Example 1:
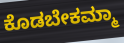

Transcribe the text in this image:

ಕೊಡಬೇಕಮ್ಮಾ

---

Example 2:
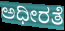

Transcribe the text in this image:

ಅಧೀರತೆ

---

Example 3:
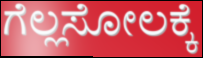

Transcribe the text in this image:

ಗೆಲ್ಲಸೋಲಕ್ಕೆ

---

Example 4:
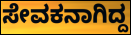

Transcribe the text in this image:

ಸೇವಕನಾಗಿದ್ದ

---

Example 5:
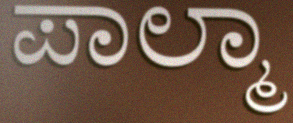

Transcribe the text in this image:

ಪಾಲ್ಮಾ